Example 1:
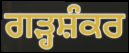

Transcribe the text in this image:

ਗੜ੍ਹਸ਼ੰਕਰ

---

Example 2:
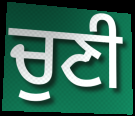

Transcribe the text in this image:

ਚੁਣੀ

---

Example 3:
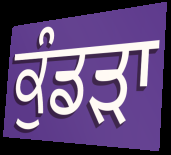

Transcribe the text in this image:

ਕੁੰਡੜਾ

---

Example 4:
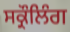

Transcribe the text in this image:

ਸਕ੍ਰੌਲਿੰਗ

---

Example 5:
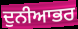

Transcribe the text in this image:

ਦੁਨੀਆਭਰ